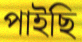
পাইছি